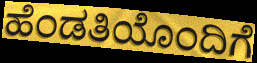
ಹೆಂಡತಿಯೊಂದಿಗೆ